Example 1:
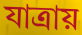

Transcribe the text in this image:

যাত্রায়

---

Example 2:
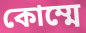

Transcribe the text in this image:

কোম্মে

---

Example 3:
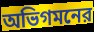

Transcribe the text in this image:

অভিগমনের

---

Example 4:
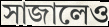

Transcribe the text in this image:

সাজালেও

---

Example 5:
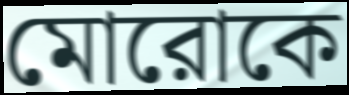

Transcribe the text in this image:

মোরোকে